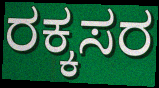
ರಕ್ಕಸರ